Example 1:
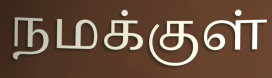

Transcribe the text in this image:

நமக்குள்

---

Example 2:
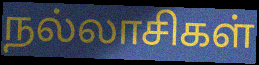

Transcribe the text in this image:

நல்லாசிகள்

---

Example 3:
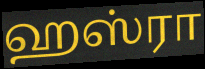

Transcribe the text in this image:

ஹஸ்ரா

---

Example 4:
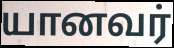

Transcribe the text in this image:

யானவர்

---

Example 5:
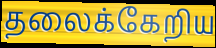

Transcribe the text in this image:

தலைக்கேறிய